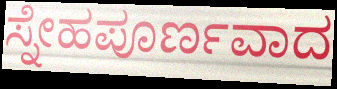
ಸ್ನೇಹಪೂರ್ಣವಾದ